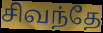
சிவந்தே